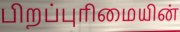
பிறப்புரிமையின்